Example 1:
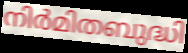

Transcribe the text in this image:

നിർമിതബുദ്ധി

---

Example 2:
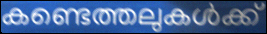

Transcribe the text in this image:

കണ്ടെത്തലുകൾക്ക്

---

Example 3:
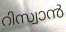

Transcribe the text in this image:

റിസ്വാൻ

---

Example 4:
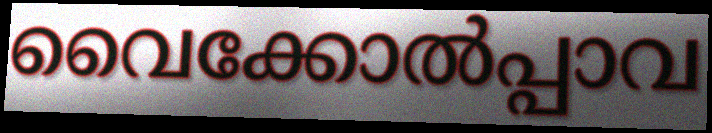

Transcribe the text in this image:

വൈക്കോൽപ്പാവ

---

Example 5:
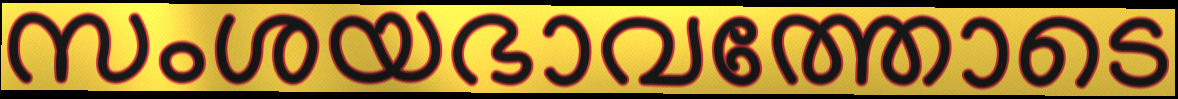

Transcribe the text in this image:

സംശയഭാവത്തോടെ